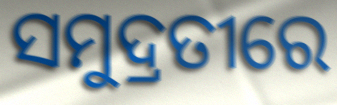
ସମୁଦ୍ରତୀରେ